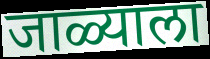
जाळ्याला